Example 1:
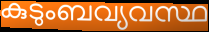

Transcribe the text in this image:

കുടുംബവ്യവസ്ഥ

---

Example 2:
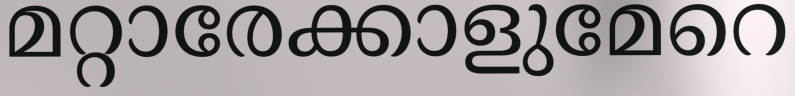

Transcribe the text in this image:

മറ്റാരേക്കാളുമേറെ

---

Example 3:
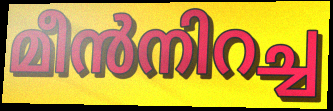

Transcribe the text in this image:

മീൻനിറച്ച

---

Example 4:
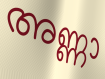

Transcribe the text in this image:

അണ്ണാ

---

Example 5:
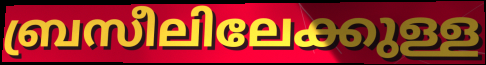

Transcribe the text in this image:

ബ്രസീലിലേക്കുള്ള